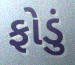
ફોડું